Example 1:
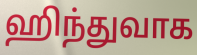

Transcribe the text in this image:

ஹிந்துவாக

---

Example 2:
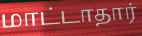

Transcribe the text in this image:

மாட்டாதார்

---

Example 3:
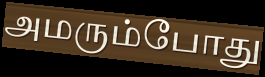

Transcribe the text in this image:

அமரும்போது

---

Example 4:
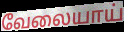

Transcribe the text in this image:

வேலையாய்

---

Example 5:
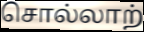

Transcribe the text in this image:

சொல்லாற்